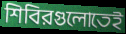
শিবিরগুলোতেই